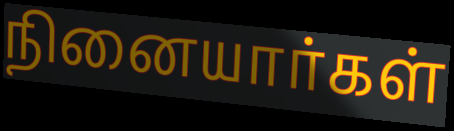
நினையார்கள்